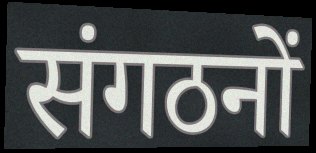
संगठनों